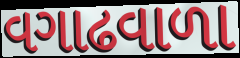
વગાઢવાળા